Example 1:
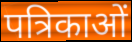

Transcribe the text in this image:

पत्रिकाओं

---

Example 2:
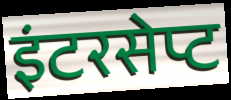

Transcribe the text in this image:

इंटरसेप्‍ट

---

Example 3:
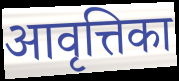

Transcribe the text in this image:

आवृत्तिका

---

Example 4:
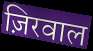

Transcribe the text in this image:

ज़िरवाल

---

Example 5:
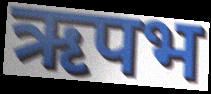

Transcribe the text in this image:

ऋपभ